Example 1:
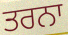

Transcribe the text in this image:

ਤਰਨਾ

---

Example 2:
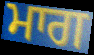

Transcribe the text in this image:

ਮਾਗ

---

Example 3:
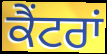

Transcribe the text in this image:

ਕੈਂਟਰਾਂ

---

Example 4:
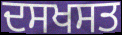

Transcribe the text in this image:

ਦਸਖਸਤ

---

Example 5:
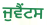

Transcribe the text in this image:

ਜੁਵੈਂਟਸ